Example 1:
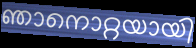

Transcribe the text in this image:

ഞാനൊറ്റയായി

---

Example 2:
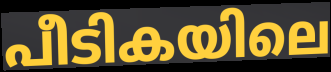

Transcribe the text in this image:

പീടികയിലെ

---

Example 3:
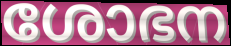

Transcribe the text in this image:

ശോഭന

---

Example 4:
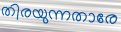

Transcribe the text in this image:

തിരയുന്നതാരേ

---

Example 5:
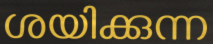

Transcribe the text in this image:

ശയിക്കുന്ന